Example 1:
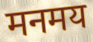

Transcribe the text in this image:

मनमय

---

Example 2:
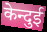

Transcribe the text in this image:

केन्दुई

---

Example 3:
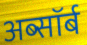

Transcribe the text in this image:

अब्सॉर्ब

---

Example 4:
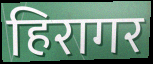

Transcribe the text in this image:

हिरागर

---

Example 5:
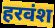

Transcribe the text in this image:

हरवंश